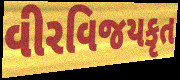
વીરવિજયકૃત